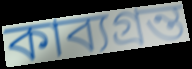
কাব্যগ্রন্ত